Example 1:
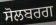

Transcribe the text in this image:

ਸੋਲਬਰਗ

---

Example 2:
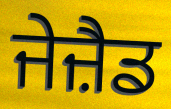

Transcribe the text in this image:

ਜੇਜ਼ੈਡ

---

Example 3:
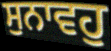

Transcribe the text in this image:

ਸੁਨਾਵਹੁ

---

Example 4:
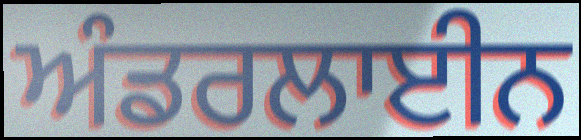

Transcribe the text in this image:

ਅੰਡਰਲਾਈਨ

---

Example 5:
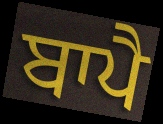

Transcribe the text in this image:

ਬਾਪੈ